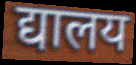
द्यालय